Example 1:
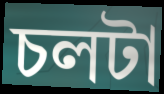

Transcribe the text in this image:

চলটা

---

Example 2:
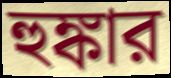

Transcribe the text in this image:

হুঙ্কার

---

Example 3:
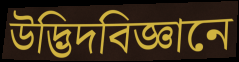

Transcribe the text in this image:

উদ্ভিদবিজ্ঞানে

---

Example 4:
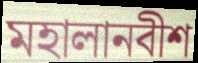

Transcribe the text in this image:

মহালানবীশ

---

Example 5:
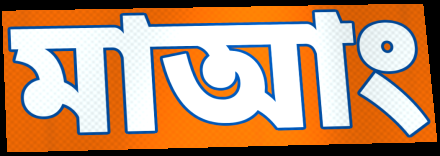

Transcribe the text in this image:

মাআং